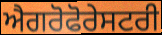
ਐਗਰੋਫੋਰੇਸਟਰੀ